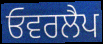
ਓਵਰਲੈਪ